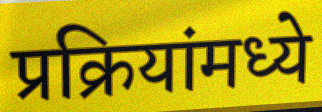
प्रक्रियांमध्ये